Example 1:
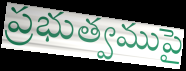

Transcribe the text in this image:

ప్రభుత్వముపై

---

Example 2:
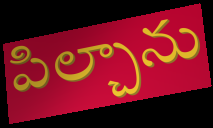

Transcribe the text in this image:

పిల్చాను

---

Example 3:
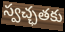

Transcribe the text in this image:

స్వచ్ఛతకు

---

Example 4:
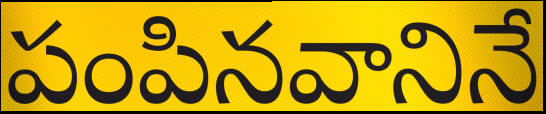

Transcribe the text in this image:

పంపినవానినే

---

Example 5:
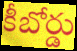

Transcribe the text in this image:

కీబోర్డు